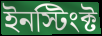
ইনস্টিংক্ট